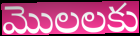
మొలలకు